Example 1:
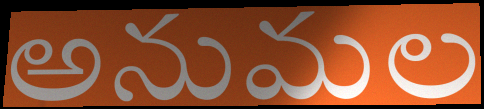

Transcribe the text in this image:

అనుమల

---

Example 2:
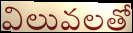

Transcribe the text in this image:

విలువలతో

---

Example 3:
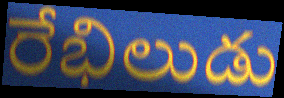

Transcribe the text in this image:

రేభిలుడు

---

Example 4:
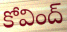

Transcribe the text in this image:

కోవింద్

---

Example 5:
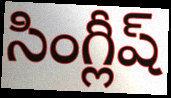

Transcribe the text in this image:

సింగ్లీష్